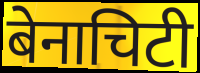
बेनाचिटी